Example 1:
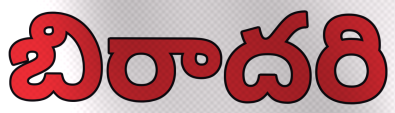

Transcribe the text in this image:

బిరాదరి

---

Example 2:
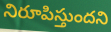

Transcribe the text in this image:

నిరూపిస్తుందని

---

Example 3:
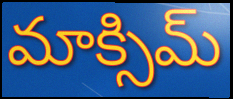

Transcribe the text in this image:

మాక్సిమ్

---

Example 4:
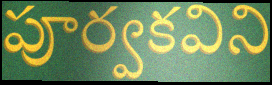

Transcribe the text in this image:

పూర్వకవిని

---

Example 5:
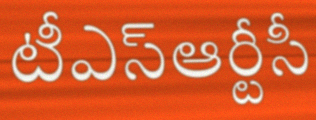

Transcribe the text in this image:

టీఎస్ఆర్టీసీ